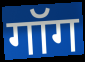
गॉग